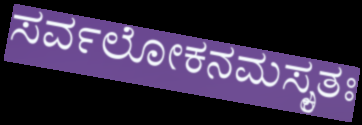
ಸರ್ವಲೋಕನಮಸ್ಕೃತಃ